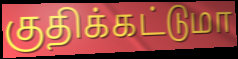
குதிக்கட்டுமா